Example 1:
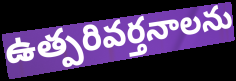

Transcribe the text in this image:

ఉత్పరివర్తనాలను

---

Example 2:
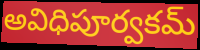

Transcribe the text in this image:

అవిధిపూర్వకమ్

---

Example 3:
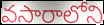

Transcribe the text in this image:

వసారాలోని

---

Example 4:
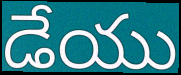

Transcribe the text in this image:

డేయు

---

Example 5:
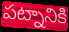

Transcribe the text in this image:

పట్నానికి